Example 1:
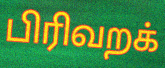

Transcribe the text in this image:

பிரிவறக்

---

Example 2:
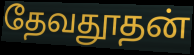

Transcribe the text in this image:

தேவதூதன்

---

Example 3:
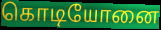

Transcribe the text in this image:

கொடியோனை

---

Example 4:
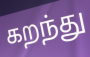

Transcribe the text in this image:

கறந்து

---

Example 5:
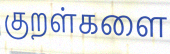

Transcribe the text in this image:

குறள்களை